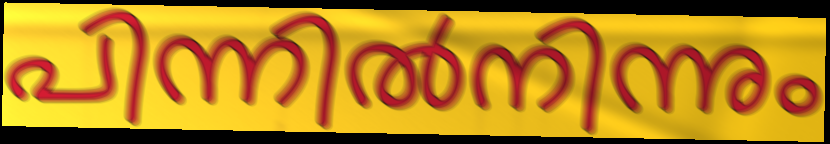
പിന്നിൽനിന്നും